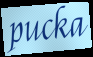
pucka